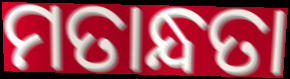
ମତାନ୍ଧତା